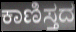
ಕಾಣಿಸ್ತದ